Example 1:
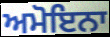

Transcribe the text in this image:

ਅਮੋਇਨਾ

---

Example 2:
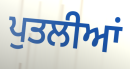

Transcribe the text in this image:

ਪੁਤਲੀਆਂ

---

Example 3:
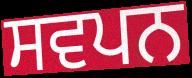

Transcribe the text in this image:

ਸਵਪਨ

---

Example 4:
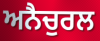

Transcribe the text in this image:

ਅਨੈਚੁਰਲ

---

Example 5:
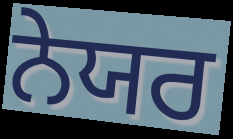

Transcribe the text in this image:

ਨੇਯਰ